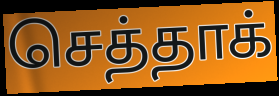
செத்தாக்